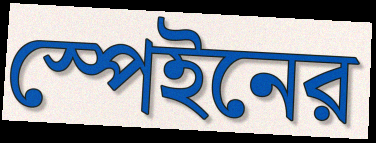
স্পেইনের